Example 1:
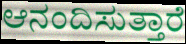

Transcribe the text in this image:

ಆನಂದಿಸುತ್ತಾರೆ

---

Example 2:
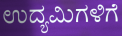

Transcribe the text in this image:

ಉದ್ಯಮಿಗಳಿಗೆ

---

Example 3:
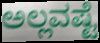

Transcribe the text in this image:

ಅಲ್ಲವಷ್ಟೆ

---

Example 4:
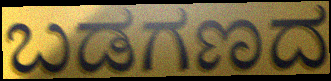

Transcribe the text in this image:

ಬಡಗಣದ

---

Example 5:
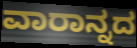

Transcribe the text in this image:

ವಾರಾನ್ನದ